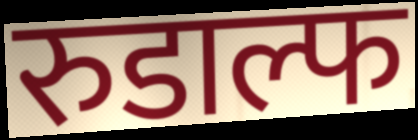
रुडाल्फ